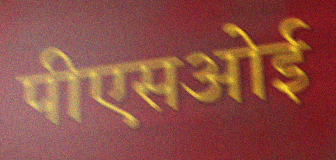
पीएसओई